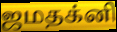
ஜமதக்னி